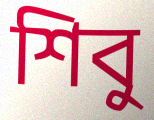
শিবু